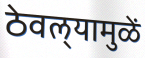
ठेवल्यामुळें